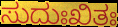
ಸುದುಃಖಿತಃ